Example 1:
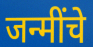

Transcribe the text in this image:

जन्मींचे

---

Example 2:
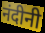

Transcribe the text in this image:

नंदीनी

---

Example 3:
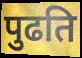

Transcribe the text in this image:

पुढति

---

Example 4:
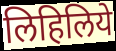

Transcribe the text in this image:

लिहिलिये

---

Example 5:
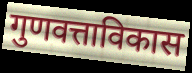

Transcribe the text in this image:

गुणवत्ताविकास